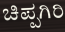
ಚಿಪ್ಪಗಿರಿ